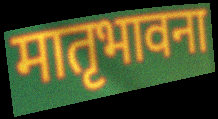
मातृभावना